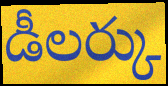
డీలర్కు